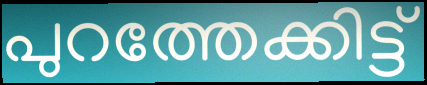
പുറത്തേക്കിട്ട്